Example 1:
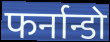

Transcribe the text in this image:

फर्नान्डो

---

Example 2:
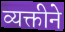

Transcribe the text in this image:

व्यक्तीने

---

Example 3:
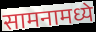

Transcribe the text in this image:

सामनामध्ये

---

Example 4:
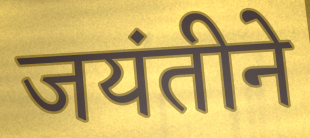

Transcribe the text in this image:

जयंतीने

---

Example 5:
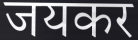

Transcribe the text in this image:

जयकर